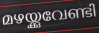
മഴയ്ക്കുവേണ്ടി